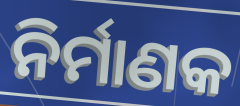
ନିର୍ମାଣକ